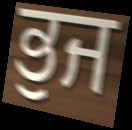
ਭੁਜ